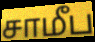
சாமீப